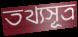
তথ্যসূত্ৰ